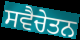
ਸਵੈਚੇਤਨ